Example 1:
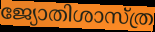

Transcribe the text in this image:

ജ്യോതിശാസ്ത്ര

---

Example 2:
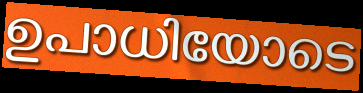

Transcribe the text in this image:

ഉപാധിയോടെ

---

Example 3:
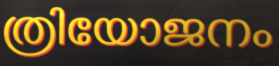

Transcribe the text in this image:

ത്രിയോജനം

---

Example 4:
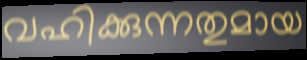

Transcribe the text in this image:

വഹിക്കുന്നതുമായ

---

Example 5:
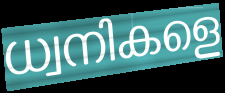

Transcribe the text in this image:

ധ്വനികളെ